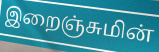
இறைஞ்சுமின்